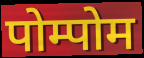
पोम्पोम